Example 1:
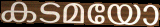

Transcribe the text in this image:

കടമയോ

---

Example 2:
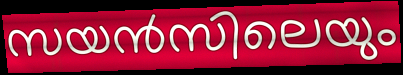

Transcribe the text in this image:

സയൻസിലെയും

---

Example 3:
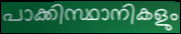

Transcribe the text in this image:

പാക്കിസ്ഥാനികളും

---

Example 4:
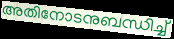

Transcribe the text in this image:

അതിനോടനുബന്ധിച്ച്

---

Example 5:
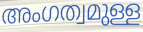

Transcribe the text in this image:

അംഗത്വമുള്ള